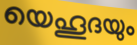
യെഹൂദയും